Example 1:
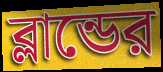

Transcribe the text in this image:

ব্লান্ডের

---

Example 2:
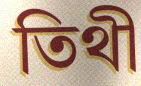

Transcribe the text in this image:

তিথী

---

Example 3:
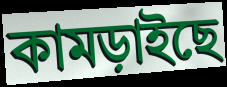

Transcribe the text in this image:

কামড়াইছে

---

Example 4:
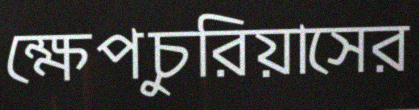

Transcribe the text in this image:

ক্ষেপচুরিয়াসের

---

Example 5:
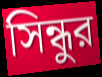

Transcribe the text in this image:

সিন্ধুর